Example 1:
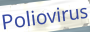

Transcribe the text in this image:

Poliovirus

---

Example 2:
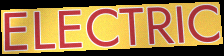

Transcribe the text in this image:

ELECTRIC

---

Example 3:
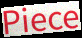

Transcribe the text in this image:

Piece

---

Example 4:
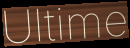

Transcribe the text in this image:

Ultime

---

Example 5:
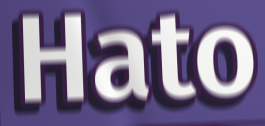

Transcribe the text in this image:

Hato